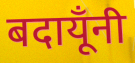
बदायूँनी